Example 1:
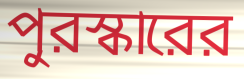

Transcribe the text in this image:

পুরস্কারের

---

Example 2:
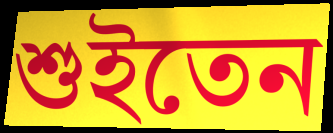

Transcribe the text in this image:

শুইতেন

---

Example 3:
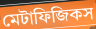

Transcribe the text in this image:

মেটাফিজিকস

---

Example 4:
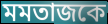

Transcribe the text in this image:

মমতাজকে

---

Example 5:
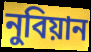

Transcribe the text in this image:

নুবিয়ান